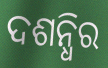
ଦଶନ୍ଧିର